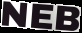
NEB